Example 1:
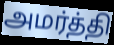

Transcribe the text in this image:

அமர்த்தி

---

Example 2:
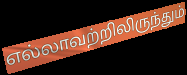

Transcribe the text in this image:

எல்லாவற்றிலிருந்தும்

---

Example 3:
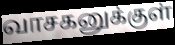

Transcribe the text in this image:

வாசகனுக்குள்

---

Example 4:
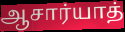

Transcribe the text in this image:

ஆசார்யாத்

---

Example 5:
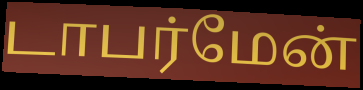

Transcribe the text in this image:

டாபர்மேன்